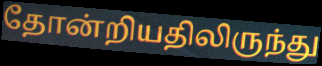
தோன்றியதிலிருந்து